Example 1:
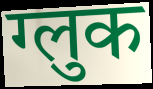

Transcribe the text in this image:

ग्लुक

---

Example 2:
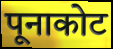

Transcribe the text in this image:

पूनाकोट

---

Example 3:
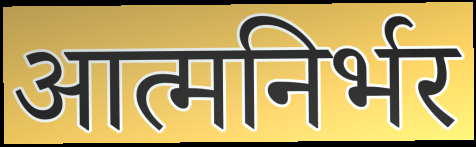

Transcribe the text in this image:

आत्मनिर्भर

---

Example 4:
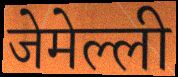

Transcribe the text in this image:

जेमेल्ली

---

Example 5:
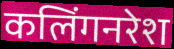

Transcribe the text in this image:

कलिंगनरेश